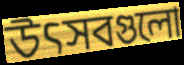
উৎসবগুলো